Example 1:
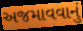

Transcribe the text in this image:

અજમાવવાનું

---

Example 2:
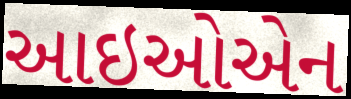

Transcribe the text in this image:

આઇઓએન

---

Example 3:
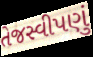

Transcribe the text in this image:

તેજસ્વીપણું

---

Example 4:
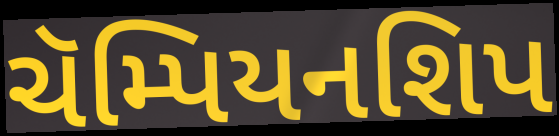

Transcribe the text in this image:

ચૅમ્પિયનશિપ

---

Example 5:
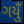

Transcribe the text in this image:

ગયુઁ